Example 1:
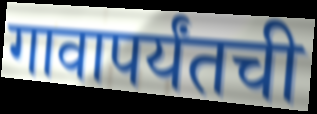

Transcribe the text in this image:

गावापर्यंतची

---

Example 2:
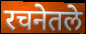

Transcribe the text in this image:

रचनेतले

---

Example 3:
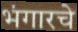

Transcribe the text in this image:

भंगारचे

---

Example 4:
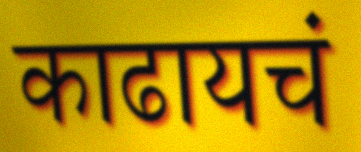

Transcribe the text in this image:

काढायचं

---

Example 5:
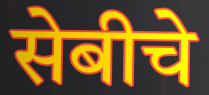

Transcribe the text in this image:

सेबीचे